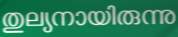
തുല്യനായിരുന്നു